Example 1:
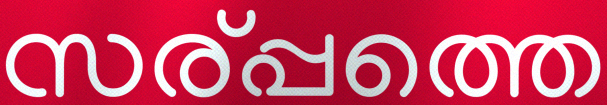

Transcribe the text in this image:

സര്പ്പത്തെ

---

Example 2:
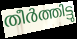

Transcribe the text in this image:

തീർത്തിട്ടു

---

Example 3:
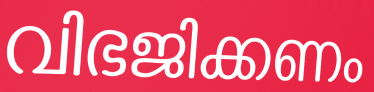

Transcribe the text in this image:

വിഭജിക്കണം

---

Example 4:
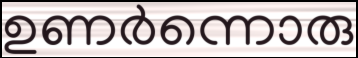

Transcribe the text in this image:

ഉണർന്നൊരു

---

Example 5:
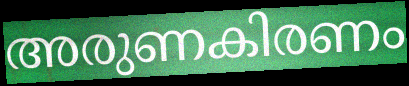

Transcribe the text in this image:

അരുണകിരണം